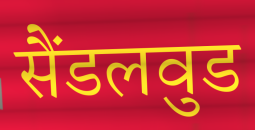
सैंडलवुड